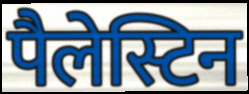
पैलेस्टिन